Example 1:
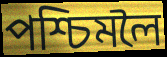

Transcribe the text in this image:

পশ্চিমলৈ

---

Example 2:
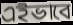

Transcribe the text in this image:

এইভাবে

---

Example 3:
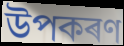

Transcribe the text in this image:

উপকৰণ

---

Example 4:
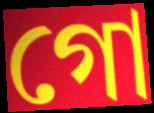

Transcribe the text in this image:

গো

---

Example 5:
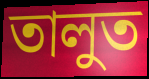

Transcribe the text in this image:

তালুত